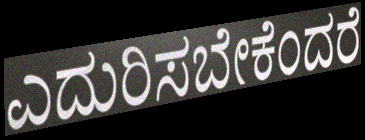
ಎದುರಿಸಬೇಕೆಂದರೆ